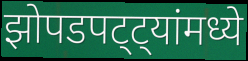
झोपडपट्ट्यांमध्ये